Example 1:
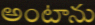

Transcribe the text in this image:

అంటాను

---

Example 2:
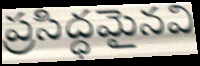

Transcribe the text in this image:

ప్రసిద్ధమైనవి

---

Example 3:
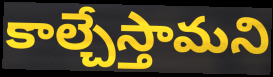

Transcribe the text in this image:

కాల్చేస్తామని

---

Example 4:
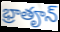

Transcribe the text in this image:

భ్రాతౄన్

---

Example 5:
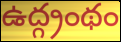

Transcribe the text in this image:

ఉద్గ్రంథం